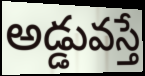
అడ్డువస్తే